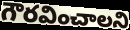
గౌరవించాలని